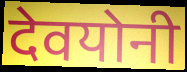
देवयोनी